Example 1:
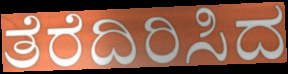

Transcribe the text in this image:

ತೆರೆದಿರಿಸಿದ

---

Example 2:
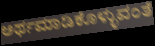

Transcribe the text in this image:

ಅರ್ಥಮಾಡಿಕೊಳ್ಳುವಂತೆ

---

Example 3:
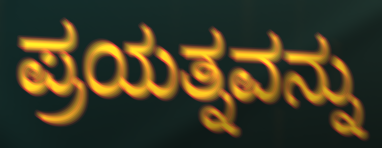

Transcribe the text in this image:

ಪ್ರಯತ್ನವನ್ನು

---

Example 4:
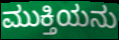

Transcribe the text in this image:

ಮುಕ್ತಿಯನು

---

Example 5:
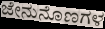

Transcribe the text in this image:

ಜೇನುನೊಣಗಳ